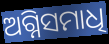
ଅଗ୍ନିସମାଧି